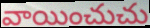
వాయించుచు